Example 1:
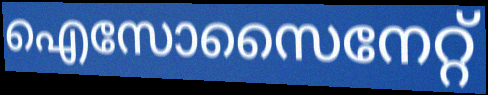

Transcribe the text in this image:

ഐസോസൈനേറ്റ്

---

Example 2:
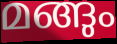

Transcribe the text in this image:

മങ്ങും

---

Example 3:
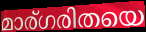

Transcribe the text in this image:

മാര്ഗരിതയെ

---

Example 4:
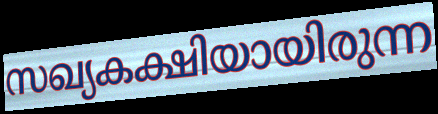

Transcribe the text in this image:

സഖ്യകക്ഷിയായിരുന്ന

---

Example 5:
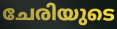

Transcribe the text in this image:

ചേരിയുടെ